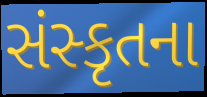
સંસ્કૃતના